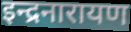
इन्द्रनारायण